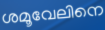
ശമൂവേലിനെ